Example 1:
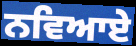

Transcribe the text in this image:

ਨਵਿਆਏ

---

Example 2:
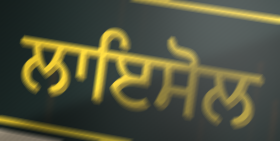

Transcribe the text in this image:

ਲਾਇਸੋਲ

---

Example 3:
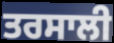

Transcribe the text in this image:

ਤਰਸਾਲੀ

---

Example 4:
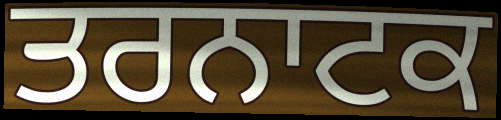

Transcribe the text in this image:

ਤਰਨਾਟਕ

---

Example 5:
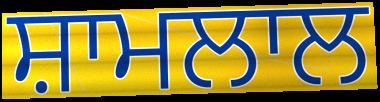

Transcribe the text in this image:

ਸ਼ਾਮਲਾਲ